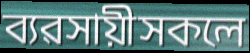
ব্যৱসায়ীসকলে